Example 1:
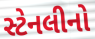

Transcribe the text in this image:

સ્ટેનલીનો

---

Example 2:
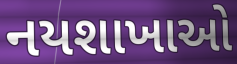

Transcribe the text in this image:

નયશાખાઓ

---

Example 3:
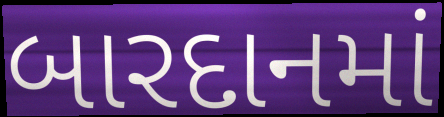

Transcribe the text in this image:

બારદાનમાં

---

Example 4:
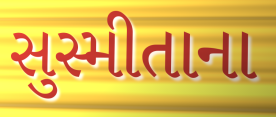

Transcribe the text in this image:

સુસ્મીતાના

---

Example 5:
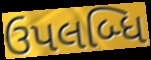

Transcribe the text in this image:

ઉપલબ્ધિ